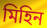
মিহিন